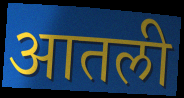
आतली